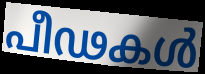
പീഢകൾ